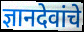
ज्ञानदेवांचे